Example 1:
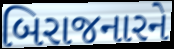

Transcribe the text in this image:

બિરાજનારને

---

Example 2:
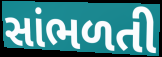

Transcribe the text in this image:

સાંભળતી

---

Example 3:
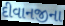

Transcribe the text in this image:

દીવાનજીના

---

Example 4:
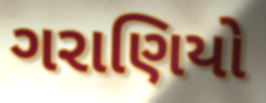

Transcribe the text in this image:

ગરાણિયો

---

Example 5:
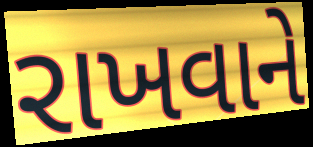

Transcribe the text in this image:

રાખવાને